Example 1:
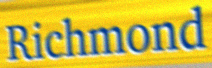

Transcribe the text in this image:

Richmond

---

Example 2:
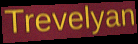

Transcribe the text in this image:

Trevelyan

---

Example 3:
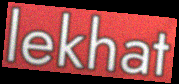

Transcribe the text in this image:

lekhat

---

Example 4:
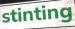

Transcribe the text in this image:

stinting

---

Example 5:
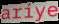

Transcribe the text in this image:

ariye